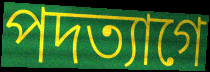
পদত্যাগে